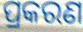
ପ୍ରକରଣ